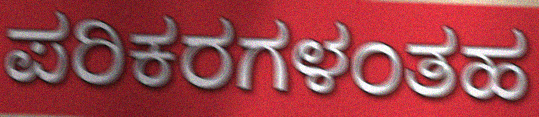
ಪರಿಕರಗಳಂತಹ